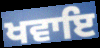
ਖਵਾਇ